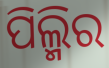
ପିଲ୍ମିର